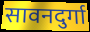
सावनदुर्गा